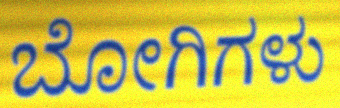
ಬೋಗಿಗಳು